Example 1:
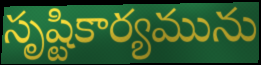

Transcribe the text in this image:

సృష్టికార్యమును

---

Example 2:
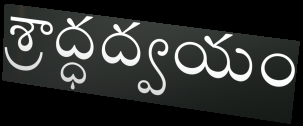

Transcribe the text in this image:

శ్రాద్ధద్వయం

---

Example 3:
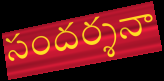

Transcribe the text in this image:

సందర్శనా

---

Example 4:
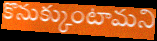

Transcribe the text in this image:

కొనుక్కుంటామని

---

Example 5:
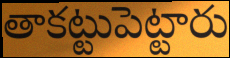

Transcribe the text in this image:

తాకట్టుపెట్టారు